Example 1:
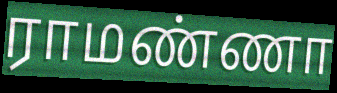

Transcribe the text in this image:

ராமண்ணா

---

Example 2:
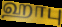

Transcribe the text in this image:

ஹாபு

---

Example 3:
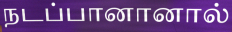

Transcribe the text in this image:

நடப்பானானால்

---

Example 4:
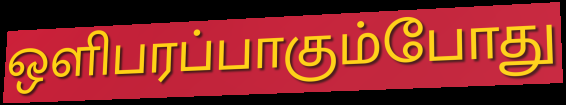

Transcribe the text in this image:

ஒளிபரப்பாகும்போது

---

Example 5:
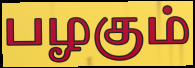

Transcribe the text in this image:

பழகும்